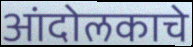
आंदोलकाचे